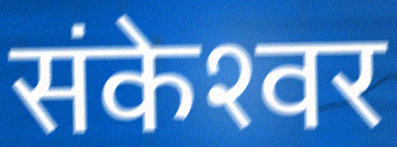
संकेश्वर